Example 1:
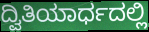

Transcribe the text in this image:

ದ್ವಿತಿಯಾರ್ಧದಲ್ಲಿ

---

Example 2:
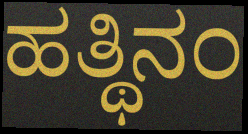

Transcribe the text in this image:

ಹತ್ಥಿನಂ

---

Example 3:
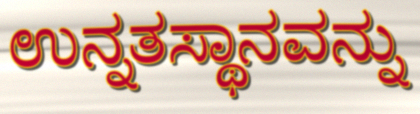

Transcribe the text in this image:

ಉನ್ನತಸ್ಥಾನವನ್ನು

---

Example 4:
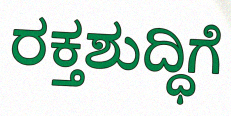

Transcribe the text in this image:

ರಕ್ತಶುದ್ಧಿಗೆ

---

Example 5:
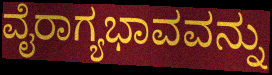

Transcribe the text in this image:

ವೈರಾಗ್ಯಭಾವವನ್ನು